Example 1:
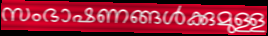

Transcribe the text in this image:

സംഭാഷണങ്ങൾക്കുമുള്ള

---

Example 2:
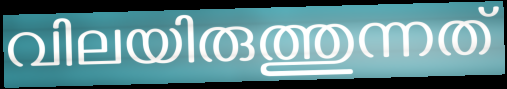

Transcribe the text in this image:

വിലയിരുത്തുന്നത്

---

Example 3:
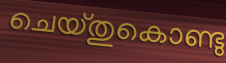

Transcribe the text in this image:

ചെയ്തുകൊണ്ടു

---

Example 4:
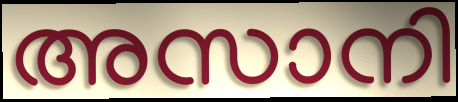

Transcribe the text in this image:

അസാനി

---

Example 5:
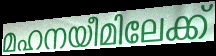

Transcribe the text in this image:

മഹനയീമിലേക്ക്